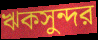
ঋকসুন্দর